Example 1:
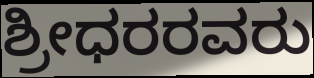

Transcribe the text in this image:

ಶ್ರೀಧರರವರು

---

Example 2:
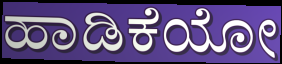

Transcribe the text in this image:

ಹಾಡಿಕೆಯೋ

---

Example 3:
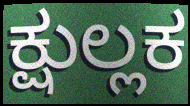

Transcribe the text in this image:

ಕ್ಷುಲ್ಲಕ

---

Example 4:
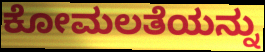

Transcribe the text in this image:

ಕೋಮಲತೆಯನ್ನು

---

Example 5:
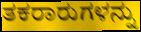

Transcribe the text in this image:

ತಕರಾರುಗಳನ್ನು